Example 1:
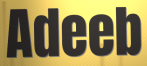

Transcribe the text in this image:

Adeeb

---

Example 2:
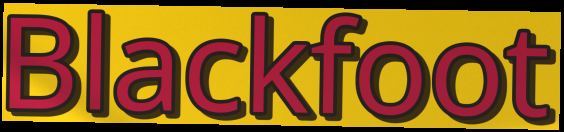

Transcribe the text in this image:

Blackfoot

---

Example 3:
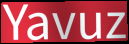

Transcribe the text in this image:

Yavuz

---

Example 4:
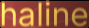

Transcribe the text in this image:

haline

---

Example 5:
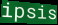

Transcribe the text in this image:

ipsis